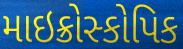
માઇક્રોસ્કોપિક